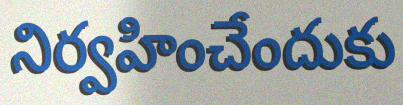
నిర్వహించేందుకు